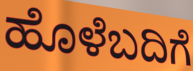
ಹೊಳೆಬದಿಗೆ